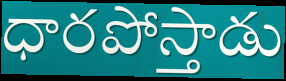
ధారపోస్తాడు